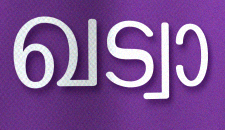
ഖട്വാ